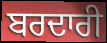
ਬਰਦਾਰੀ